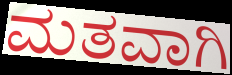
ಮತವಾಗಿ